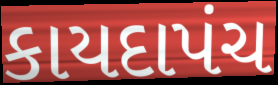
કાયદાપંચ